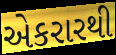
એકરારથી